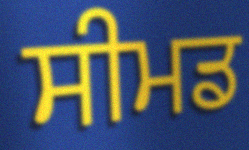
ਸੀਮਡ